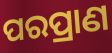
ପରପ୍ରାଣ